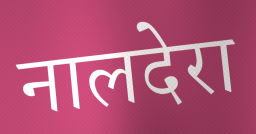
नालदेरा